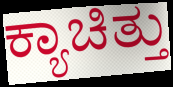
ಕ್ಯಾಚಿತ್ತು